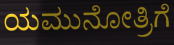
ಯಮುನೋತ್ರಿಗೆ